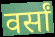
वर्सां